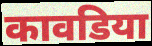
कावडिया